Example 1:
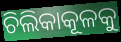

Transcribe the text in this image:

ଚିଲିକାକୂଳକୁ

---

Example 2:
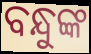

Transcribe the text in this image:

ବନ୍ଧୁଙ୍କ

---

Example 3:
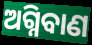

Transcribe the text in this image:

ଅଗ୍ନିବାଣ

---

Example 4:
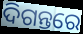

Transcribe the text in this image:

ଦିଗନ୍ତରେ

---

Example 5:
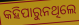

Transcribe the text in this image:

କହିପାରୁନଥିଲେ